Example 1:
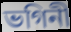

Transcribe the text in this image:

ভগিনী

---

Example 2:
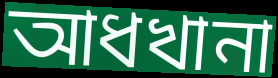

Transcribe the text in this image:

আধখানা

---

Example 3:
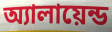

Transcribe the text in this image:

অ্যালায়েন্ড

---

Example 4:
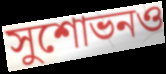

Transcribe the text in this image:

সুশোভনও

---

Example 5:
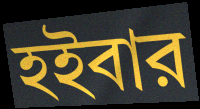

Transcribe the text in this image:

হইবার